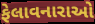
ફેલાવનારાઓ